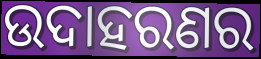
ଉଦାହରଣର